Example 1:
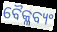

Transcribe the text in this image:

ବୈକ୍ଳବ୍ୟଂ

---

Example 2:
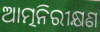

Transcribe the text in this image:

ଆତ୍ମନିରୀକ୍ଷଣ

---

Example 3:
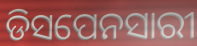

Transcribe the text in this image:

ଡିସପେନସାରୀ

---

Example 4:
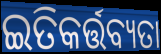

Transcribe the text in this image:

ଇତିକର୍ତ୍ତବ୍ୟତା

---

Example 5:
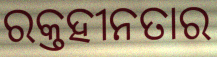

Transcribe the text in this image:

ରକ୍ତହୀନତାର